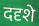
ददृशे